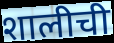
शालीची